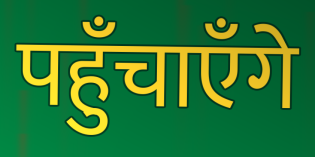
पहुँचाएँगे